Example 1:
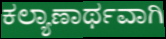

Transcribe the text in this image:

ಕಲ್ಯಾಣಾರ್ಥವಾಗಿ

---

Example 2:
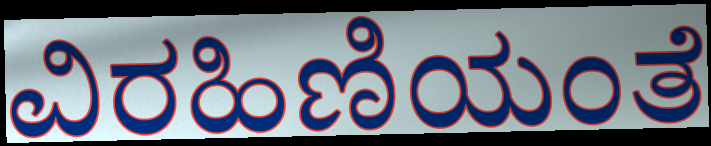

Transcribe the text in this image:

ವಿರಹಿಣಿಯಂತೆ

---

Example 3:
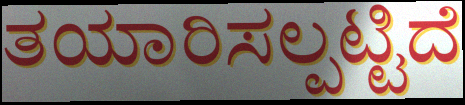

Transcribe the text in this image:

ತಯಾರಿಸಲ್ಪಟ್ಟಿದೆ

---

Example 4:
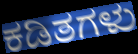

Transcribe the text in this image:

ಕಡಿತಗಳು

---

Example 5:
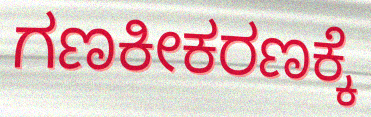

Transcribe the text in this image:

ಗಣಕೀಕರಣಕ್ಕೆ